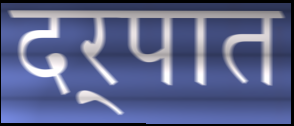
दर्पात